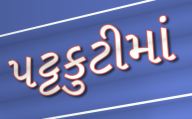
પટ્ટકુટીમાં